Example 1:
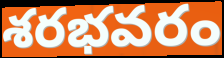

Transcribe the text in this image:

శరభవరం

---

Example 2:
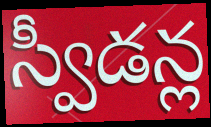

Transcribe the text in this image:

స్వీడన్ల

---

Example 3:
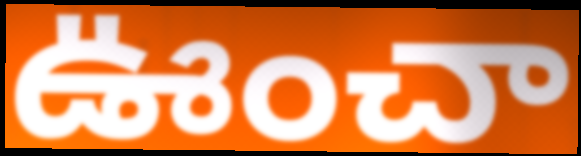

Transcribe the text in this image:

ఊంచా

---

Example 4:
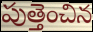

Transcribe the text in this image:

పుత్తెంచిన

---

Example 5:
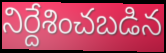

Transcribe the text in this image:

నిర్దేశించబడిన